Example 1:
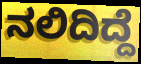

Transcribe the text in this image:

ನಲಿದಿದ್ದೆ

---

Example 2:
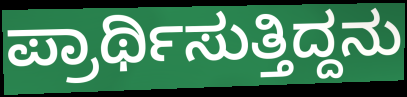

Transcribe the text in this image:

ಪ್ರಾರ್ಥಿಸುತ್ತಿದ್ದನು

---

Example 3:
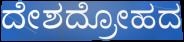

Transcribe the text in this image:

ದೇಶದ್ರೋಹದ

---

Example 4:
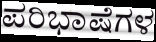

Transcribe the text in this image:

ಪರಿಭಾಷೆಗಳ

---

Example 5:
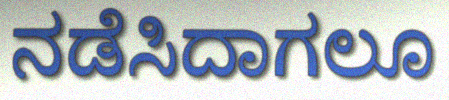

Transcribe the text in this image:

ನಡೆಸಿದಾಗಲೂ